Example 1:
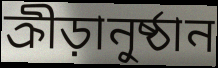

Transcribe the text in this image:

ক্ৰীড়ানুষ্ঠান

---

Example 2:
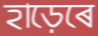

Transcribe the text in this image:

হাড়েৰে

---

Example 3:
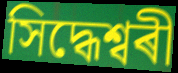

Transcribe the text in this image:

সিদ্ধেশ্বৰী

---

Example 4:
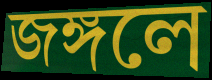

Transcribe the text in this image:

জঙ্গলে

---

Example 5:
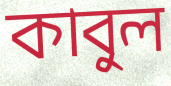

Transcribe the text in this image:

কাবুল